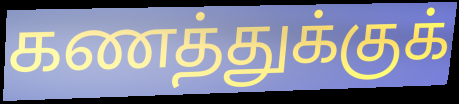
கணத்துக்குக்